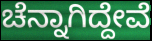
ಚೆನ್ನಾಗಿದ್ದೇವೆ